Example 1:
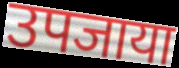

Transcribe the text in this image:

उपजाया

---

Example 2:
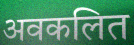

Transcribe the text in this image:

अवकलित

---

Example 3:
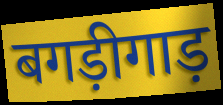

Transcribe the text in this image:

बगड़ीगाड़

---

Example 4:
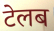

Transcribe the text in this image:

टेलब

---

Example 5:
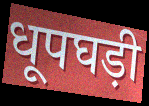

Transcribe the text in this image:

धूपघड़ी